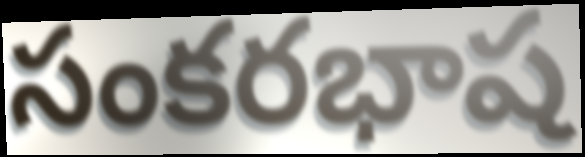
సంకరభాష